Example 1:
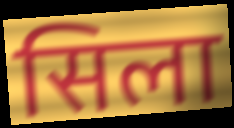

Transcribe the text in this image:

सिला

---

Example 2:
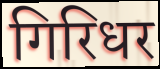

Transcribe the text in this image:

गिरिधर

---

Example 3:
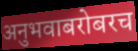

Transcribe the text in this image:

अनुभवाबरोबरच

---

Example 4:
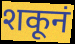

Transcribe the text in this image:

शकूनं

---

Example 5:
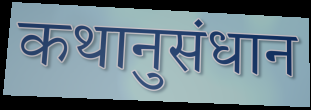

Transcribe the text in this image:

कथानुसंधान